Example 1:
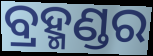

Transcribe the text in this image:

ବ୍ରହ୍ମଣ୍ଡର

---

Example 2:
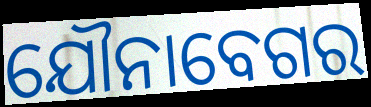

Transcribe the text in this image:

ଯୌନାବେଗର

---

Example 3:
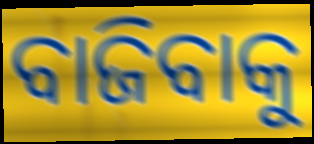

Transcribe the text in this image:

ବାଜିବାକୁ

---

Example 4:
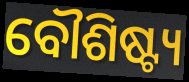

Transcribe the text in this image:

ବୌଶିଷ୍ଟ୍ୟ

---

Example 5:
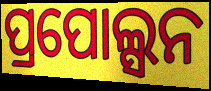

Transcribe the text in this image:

ପ୍ରପୋଲ୍ସନ